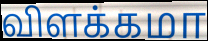
விளக்கமா